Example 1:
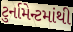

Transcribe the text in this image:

ટુર્નામેન્ટમાંથી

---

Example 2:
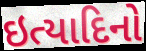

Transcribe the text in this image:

ઇત્યાદિનો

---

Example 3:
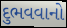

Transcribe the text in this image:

દુભવવાનો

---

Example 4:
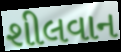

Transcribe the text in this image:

શીલવાન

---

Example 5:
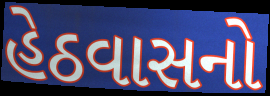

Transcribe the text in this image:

હેઠવાસનો